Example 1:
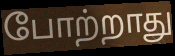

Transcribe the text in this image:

போற்றாது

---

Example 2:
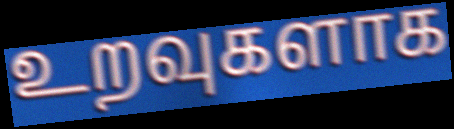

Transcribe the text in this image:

உறவுகளாக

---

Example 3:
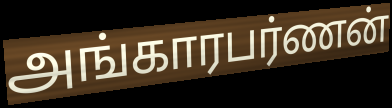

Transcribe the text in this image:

அங்காரபர்ணன்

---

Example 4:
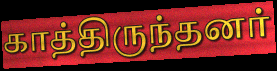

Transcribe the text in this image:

காத்திருந்தனர்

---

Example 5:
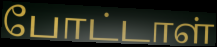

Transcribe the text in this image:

போட்டாள்